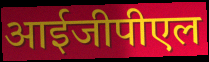
आईजीपीएल